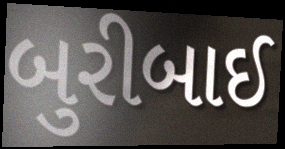
બુરીબાઈ